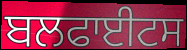
ਬਲਫਾਈਟਸ